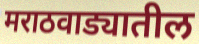
मराठवाड्यातील